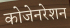
कोजेनरेशन